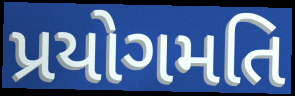
પ્રયોગમતિ